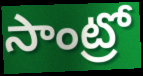
సాంట్రో